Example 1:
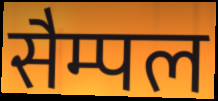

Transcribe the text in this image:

सैम्पल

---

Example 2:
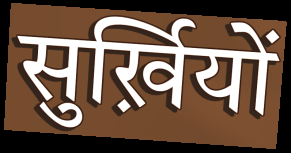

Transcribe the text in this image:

सुर्ख़ियों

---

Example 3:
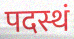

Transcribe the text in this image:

पदस्थं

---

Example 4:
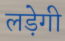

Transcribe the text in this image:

लड़ेगी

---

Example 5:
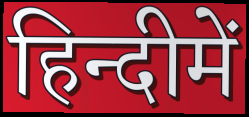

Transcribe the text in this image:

हिन्दीमें